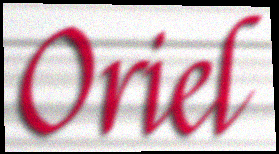
Oriel